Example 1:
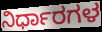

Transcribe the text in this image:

ನಿರ್ಧಾರಗಳ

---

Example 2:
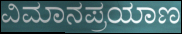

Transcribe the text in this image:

ವಿಮಾನಪ್ರಯಾಣ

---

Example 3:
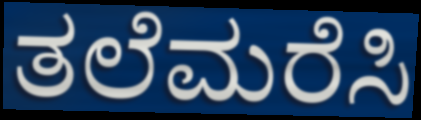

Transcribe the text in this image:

ತಲೆಮರೆಸಿ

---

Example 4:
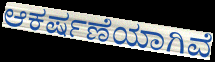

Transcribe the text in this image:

ಆಕರ್ಷಣೆಯಾಗಿವೆ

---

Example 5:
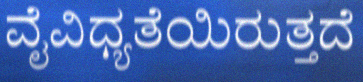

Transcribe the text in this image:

ವೈವಿಧ್ಯತೆಯಿರುತ್ತದೆ